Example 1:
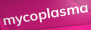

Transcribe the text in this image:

mycoplasma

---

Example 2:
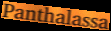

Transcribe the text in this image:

Panthalassa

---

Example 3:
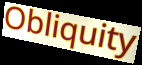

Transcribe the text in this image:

Obliquity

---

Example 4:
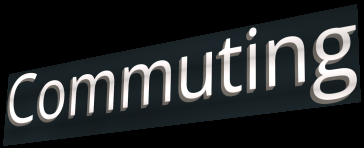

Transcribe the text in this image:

Commuting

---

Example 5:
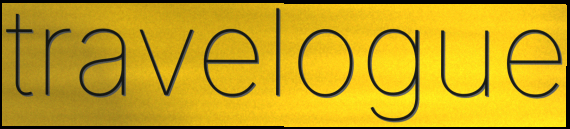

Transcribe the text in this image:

travelogue